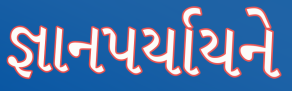
જ્ઞાનપર્યાયને